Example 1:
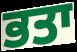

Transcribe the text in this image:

ਭਤਾ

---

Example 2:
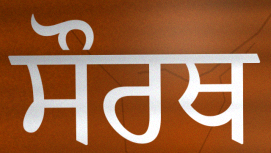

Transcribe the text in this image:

ਸੌਰਥ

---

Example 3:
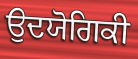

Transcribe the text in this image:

ਉਦਯੋਗਿਕੀ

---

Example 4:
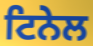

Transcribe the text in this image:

ਟਿਨੇਲ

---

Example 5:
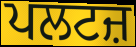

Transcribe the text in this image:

ਪਲਟਜ਼